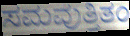
ಸಮವುತ್ತಿತಂ